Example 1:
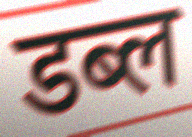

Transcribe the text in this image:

डब्ल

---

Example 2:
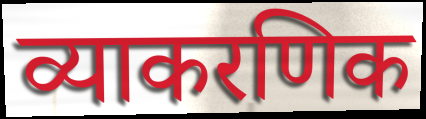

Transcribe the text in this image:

व्याकरणिक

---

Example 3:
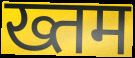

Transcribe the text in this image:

ख्तम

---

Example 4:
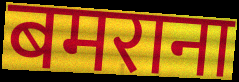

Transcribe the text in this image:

बमराना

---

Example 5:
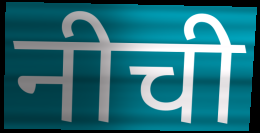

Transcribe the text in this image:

नीची